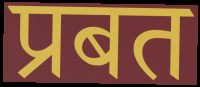
प्रबत